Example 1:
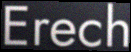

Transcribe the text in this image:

Erech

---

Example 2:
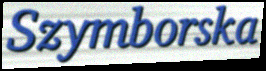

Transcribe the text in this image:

Szymborska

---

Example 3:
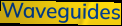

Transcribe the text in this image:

Waveguides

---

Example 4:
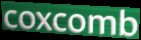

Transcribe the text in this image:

coxcomb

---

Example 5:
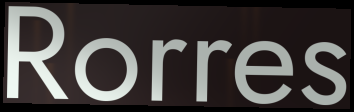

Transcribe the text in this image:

Rorres